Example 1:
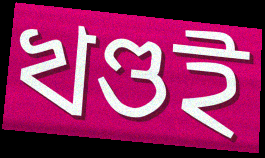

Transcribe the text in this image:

খণ্ডই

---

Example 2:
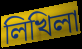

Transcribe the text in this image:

লিখিলা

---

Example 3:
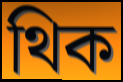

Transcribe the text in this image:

থিক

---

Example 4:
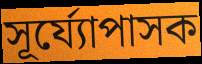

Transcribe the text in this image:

সূৰ্য্যোপাসক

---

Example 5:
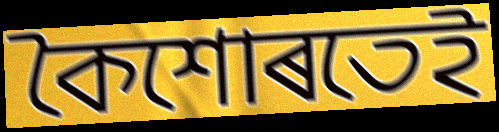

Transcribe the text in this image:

কৈশোৰতেই